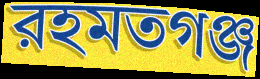
রহমতগঞ্জ